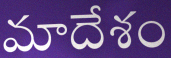
మాదేశం